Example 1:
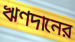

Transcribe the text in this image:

ঋণদানের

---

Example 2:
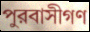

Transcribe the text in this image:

পুরবাসীগণ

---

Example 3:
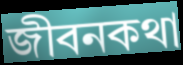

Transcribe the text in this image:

জীবনকথা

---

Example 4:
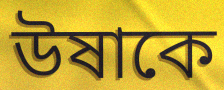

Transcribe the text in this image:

উষাকে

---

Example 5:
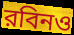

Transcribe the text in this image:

রবিনও